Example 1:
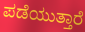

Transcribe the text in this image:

ಪಡೆಯುತ್ತಾರೆ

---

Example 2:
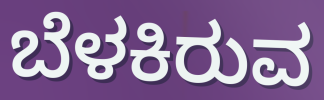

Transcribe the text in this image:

ಬೆಳಕಿರುವ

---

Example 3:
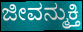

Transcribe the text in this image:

ಜೀವನ್ಮುಕ್ತಿ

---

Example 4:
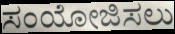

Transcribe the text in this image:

ಸಂಯೋಜಿಸಲು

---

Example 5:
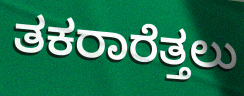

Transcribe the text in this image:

ತಕರಾರೆತ್ತಲು